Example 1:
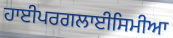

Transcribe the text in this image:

ਹਾਈਪਰਗਲਾਈਸਿਮੀਆ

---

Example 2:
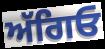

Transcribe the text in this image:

ਅੱਗਿਓ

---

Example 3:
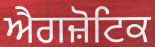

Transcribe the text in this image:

ਐਗਜ਼ੋਟਿਕ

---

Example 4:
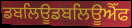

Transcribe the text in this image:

ਡਬਲਿਊਡਬਲਿਊਐੱਫ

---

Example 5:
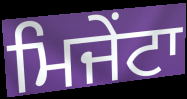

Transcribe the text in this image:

ਮਿਜੇਂਟਾ